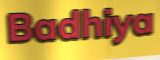
Badhiya